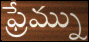
ఫ్రేమ్ను